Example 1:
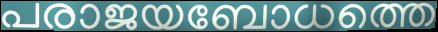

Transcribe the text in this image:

പരാജയബോധത്തെ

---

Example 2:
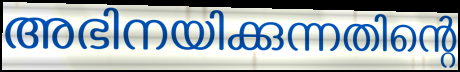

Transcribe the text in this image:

അഭിനയിക്കുന്നതിന്റെ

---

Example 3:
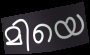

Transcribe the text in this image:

മിയെ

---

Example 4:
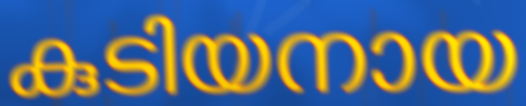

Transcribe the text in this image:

കുടിയനായ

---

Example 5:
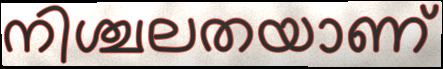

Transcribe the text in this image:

നിശ്ചലതയാണ്